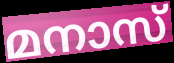
മനാസ്